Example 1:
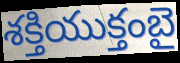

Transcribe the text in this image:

శక్తియుక్తంబై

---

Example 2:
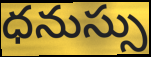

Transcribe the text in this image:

ధనుస్సు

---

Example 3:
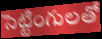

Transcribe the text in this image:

సెట్టింగులతో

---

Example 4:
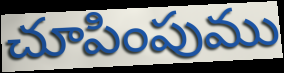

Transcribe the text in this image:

చూపింపుము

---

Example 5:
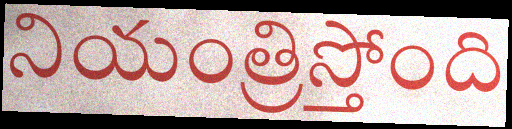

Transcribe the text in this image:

నియంత్రిస్తోంది